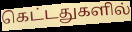
கெட்டதுகளில்